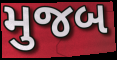
મુજબ